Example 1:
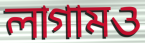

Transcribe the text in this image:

লাগামও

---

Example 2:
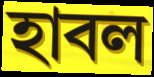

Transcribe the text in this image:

হাবল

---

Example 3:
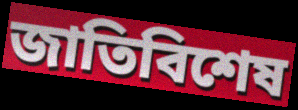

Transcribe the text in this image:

জাতিবিশেষ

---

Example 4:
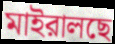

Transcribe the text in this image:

মাইরালছে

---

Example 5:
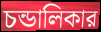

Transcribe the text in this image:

চন্ডালিকার